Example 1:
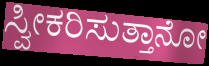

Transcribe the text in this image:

ಸ್ವೀಕರಿಸುತ್ತಾನೋ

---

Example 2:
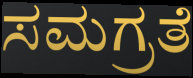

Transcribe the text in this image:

ಸಮಗ್ರತೆ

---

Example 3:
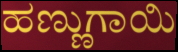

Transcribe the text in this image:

ಹಣ್ಣುಗಾಯಿ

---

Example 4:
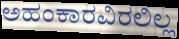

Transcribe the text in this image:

ಅಹಂಕಾರವಿರಲಿಲ್ಲ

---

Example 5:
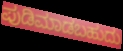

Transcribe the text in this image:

ಪುಡಿಮಾಡಬಹುದು